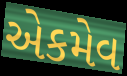
એકમેવ